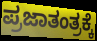
ಪ್ರಜಾತಂತ್ರಕ್ಕೆ